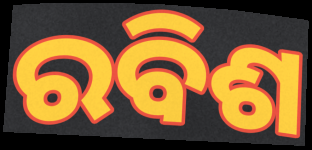
ରବିଶ